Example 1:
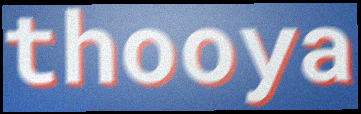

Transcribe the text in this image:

thooya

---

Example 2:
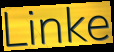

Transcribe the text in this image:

Linke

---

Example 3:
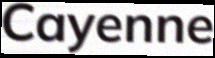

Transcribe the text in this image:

Cayenne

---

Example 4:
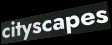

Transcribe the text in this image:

cityscapes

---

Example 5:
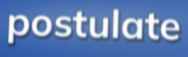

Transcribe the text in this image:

postulate